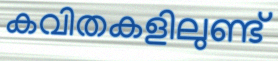
കവിതകളിലുണ്ട്